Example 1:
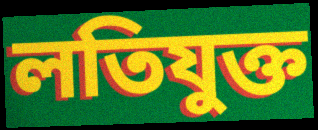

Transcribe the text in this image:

লতিযুক্ত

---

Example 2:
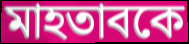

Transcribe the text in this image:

মাহতাবকে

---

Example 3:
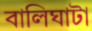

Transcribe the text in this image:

বালিঘাটা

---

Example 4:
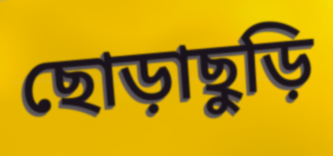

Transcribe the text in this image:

ছোড়াছুড়ি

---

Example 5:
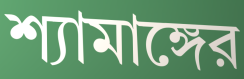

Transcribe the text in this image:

শ্যামাঙ্গের